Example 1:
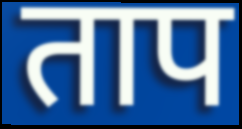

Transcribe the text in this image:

ताप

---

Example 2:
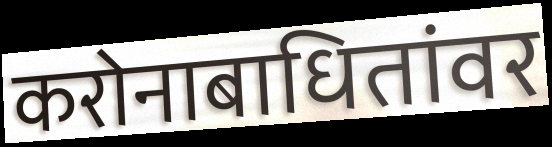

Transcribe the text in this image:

करोनाबाधितांवर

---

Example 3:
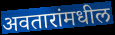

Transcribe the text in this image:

अवतारांमधील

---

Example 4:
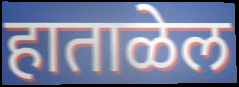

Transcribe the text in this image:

हाताळेल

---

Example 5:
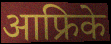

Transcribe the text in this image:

आफ्रिके